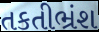
તકતીભ્રંશ